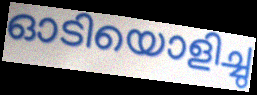
ഓടിയൊളിച്ചു